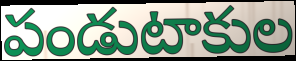
పండుటాకుల